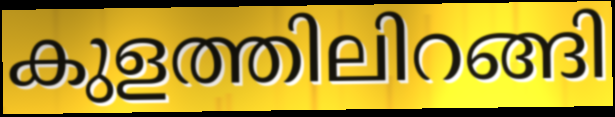
കുളത്തിലിറങ്ങി